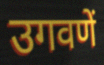
उगवणें